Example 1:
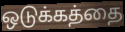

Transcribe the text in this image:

ஒடுக்கத்தை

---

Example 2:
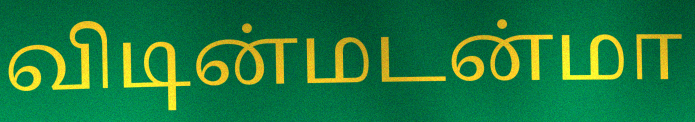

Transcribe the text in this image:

விடின்மடன்மா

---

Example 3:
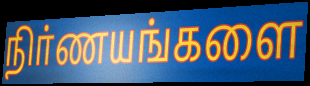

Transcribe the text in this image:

நிர்ணயங்களை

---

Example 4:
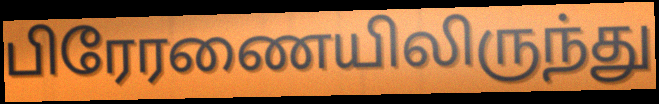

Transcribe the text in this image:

பிரேரணையிலிருந்து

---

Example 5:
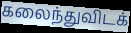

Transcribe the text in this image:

கலைந்துவிடக்